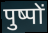
पुष्पों